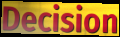
Decision